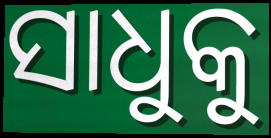
ସାଧୁକୁ